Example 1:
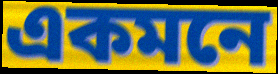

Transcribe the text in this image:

একমনে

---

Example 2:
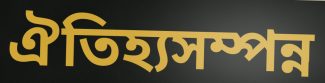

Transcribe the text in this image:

ঐতিহ্যসম্পন্ন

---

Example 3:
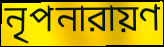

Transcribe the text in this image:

নৃপনারায়ণ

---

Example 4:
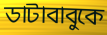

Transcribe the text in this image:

ডাটাবাবুকে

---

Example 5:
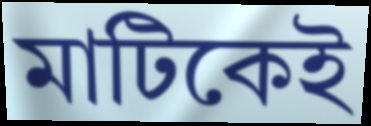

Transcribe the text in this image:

মাটিকেই